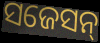
ସଜେସନ୍